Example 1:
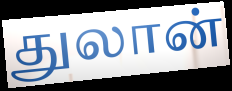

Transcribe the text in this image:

துலான்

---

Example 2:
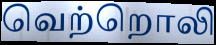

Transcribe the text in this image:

வெற்றொலி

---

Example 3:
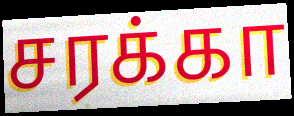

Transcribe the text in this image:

சரக்கா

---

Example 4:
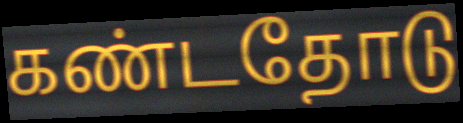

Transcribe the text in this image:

கண்டதோடு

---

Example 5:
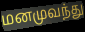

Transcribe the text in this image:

மனமுவந்து